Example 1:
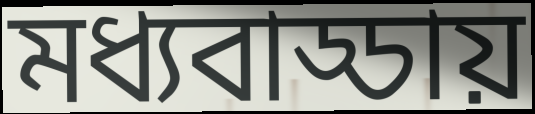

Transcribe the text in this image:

মধ্যবাড্ডায়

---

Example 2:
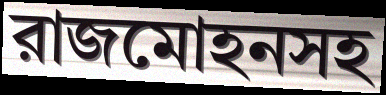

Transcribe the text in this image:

রাজমোহনসহ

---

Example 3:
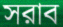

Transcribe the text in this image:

সরাব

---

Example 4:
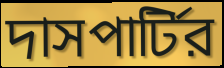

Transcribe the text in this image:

দাসপার্টির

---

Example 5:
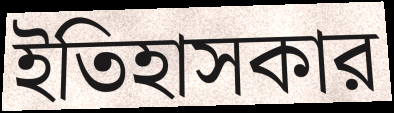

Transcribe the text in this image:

ইতিহাসকার